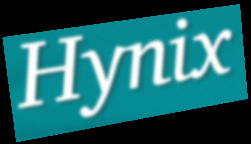
Hynix